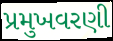
પ્રમુખવરણી